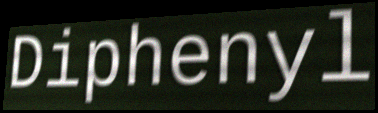
Diphenyl